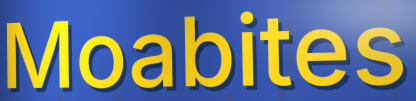
Moabites